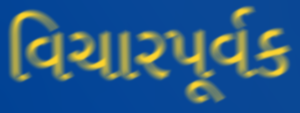
વિચારપૂર્વક